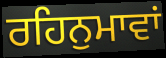
ਰਹਿਨੁਮਾਵਾਂ